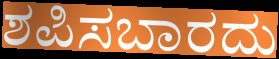
ಶಪಿಸಬಾರದು